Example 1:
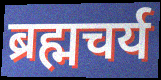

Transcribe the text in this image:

ब्रह्मचर्य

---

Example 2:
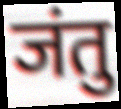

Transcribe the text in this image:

जंतु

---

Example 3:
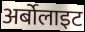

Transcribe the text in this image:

अर्बोलाइट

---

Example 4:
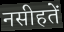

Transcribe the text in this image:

नसीहतें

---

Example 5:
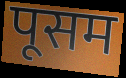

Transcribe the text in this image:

पूसम